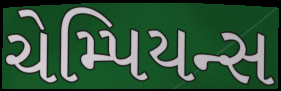
ચેમ્પિયન્સ